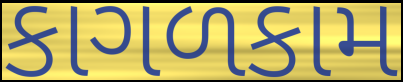
કાગળકામ